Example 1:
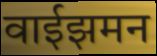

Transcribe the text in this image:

वाईझमन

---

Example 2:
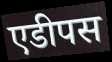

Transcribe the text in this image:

एडीपस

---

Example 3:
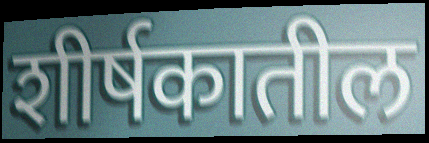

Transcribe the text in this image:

शीर्षकातील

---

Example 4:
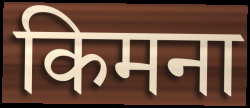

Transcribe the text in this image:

किमना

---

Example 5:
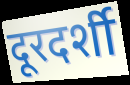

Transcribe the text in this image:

दूरदर्शी